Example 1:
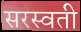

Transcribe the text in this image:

सरस्वती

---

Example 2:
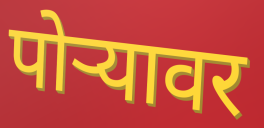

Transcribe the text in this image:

पोर्‍यावर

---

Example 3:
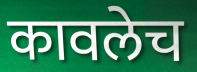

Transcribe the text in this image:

कावलेच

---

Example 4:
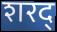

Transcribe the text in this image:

शरद्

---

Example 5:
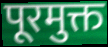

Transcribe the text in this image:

पूरमुक्त